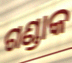
ଗଣ୍ଡାକ